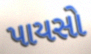
પાયસો